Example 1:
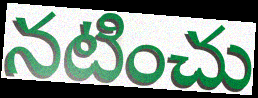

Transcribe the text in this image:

నటించు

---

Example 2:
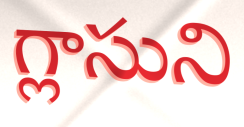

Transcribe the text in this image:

గ్లాసుని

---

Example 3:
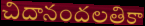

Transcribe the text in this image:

చిదానందలతికా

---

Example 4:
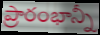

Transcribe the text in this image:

ప్రారంభాన్నీ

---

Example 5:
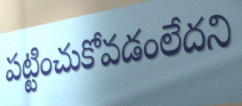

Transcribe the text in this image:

పట్టించుకోవడంలేదని